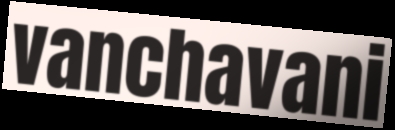
vanchavani